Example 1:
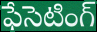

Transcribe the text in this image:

ఫేసెటింగ్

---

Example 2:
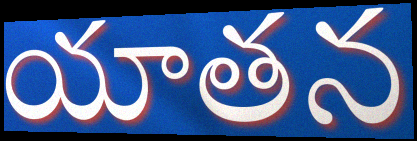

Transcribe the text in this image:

యాతన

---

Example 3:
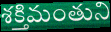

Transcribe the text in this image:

శక్తిమంతుని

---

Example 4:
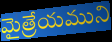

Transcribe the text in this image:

మైత్రేయముని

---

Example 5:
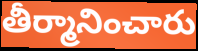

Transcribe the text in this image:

తీర్మానించారు